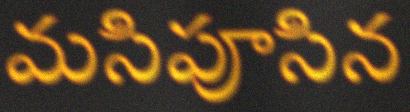
మసిపూసిన